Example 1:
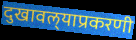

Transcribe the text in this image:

दुखावल्याप्रकरणी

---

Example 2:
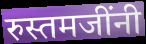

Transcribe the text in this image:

रुस्तमजींनी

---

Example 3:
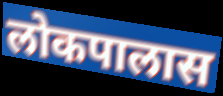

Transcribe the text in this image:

लोकपालास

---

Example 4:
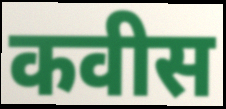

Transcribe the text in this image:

कवीस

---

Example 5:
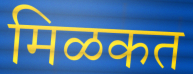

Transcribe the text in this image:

मिळकत